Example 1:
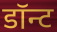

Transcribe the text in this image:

डॉन्ट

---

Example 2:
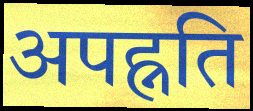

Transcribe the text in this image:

अपह्नति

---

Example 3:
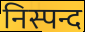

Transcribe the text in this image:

निस्पन्द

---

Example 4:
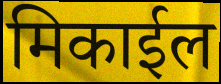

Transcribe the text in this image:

मिकाईल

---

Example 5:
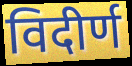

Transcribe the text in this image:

विदीर्ण